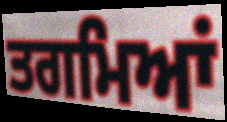
ਤਗਮਿਆਂ